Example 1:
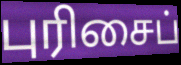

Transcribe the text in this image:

புரிசைப்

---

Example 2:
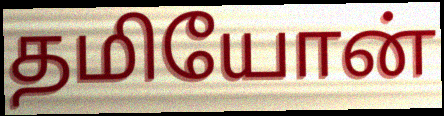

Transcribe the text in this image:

தமியோன்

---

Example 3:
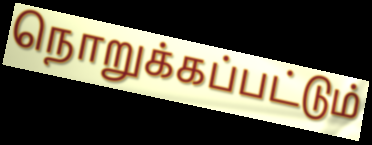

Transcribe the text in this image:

நொறுக்கப்பட்டும்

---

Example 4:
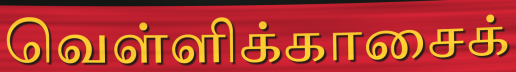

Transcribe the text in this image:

வெள்ளிக்காசைக்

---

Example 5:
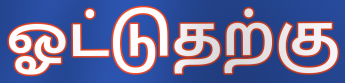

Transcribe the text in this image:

ஓட்டுதற்கு